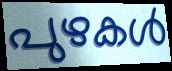
പുഴകൾ